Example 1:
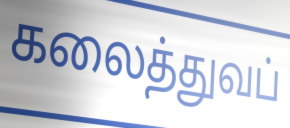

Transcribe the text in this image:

கலைத்துவப்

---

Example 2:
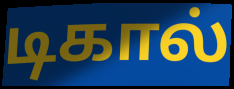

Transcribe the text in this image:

டிகால்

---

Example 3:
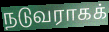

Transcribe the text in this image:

நடுவராகக்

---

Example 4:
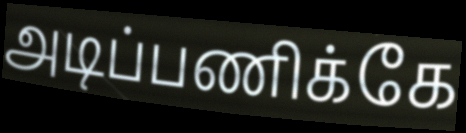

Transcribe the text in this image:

அடிப்பணிக்கே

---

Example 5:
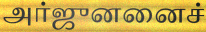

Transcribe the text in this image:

அர்ஜுனனைச்